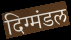
दिग्मंडल